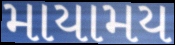
માયામય